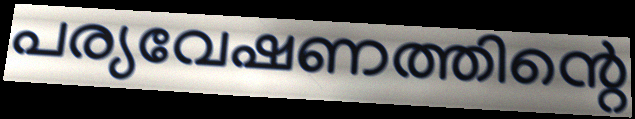
പര്യവേഷണത്തിന്റെ